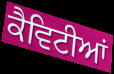
ਕੈਵਿਟੀਆਂ